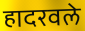
हादरवले